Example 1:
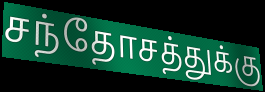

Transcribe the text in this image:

சந்தோசத்துக்கு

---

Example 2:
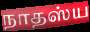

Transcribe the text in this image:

நாதஸ்ய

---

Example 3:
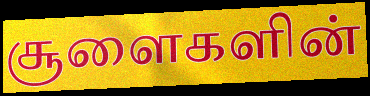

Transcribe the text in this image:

சூளைகளின்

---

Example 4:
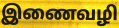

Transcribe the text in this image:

இணைவழி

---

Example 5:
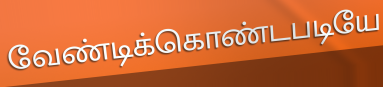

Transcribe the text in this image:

வேண்டிக்கொண்டபடியே